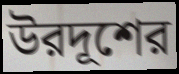
উরদূশের